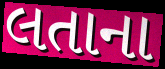
લતાના